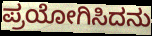
ಪ್ರಯೋಗಿಸಿದನು